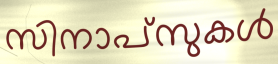
സിനാപ്സുകൾ